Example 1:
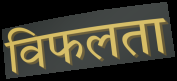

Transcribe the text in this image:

विफलता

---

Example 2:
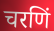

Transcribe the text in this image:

चरणिं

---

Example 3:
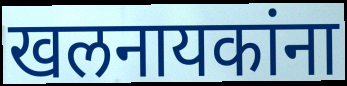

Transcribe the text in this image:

खलनायकांना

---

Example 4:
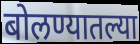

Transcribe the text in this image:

बोलण्यातल्या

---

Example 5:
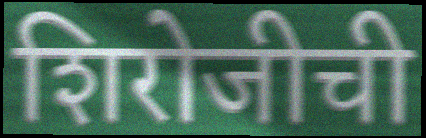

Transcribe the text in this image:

शिरोजीची